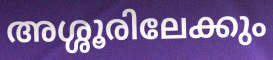
അശ്ശൂരിലേക്കും